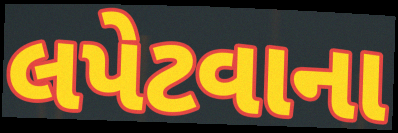
લપેટવાના